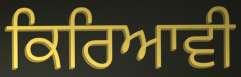
ਕਿਰਿਆਵੀ